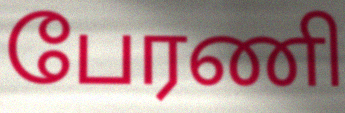
பேரணி